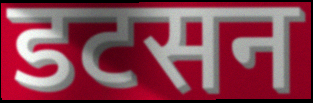
डटसन